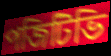
পজিটিভি